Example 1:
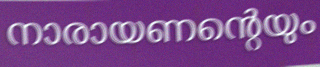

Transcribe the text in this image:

നാരായണന്റെയും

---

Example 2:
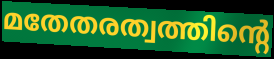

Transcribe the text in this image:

മതേതരത്വത്തിന്റെ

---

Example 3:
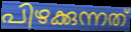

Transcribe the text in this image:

പിഴക്കുന്നത്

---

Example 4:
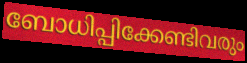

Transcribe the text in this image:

ബോധിപ്പിക്കേണ്ടിവരും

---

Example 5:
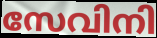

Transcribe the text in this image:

സേവിനി